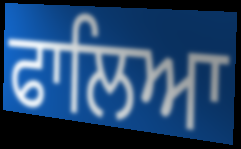
ਫਾਲਿਆ